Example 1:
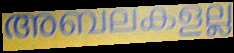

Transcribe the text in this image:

അബലകളല്ല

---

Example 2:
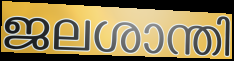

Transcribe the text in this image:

ജലശാന്തി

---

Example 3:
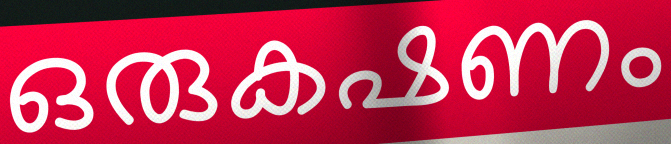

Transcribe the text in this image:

ഒരുകഷണം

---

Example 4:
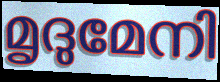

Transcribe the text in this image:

മൃദുമേനി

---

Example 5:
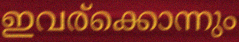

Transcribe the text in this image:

ഇവര്ക്കൊന്നും